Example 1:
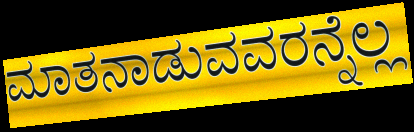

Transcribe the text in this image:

ಮಾತನಾಡುವವರನ್ನೆಲ್ಲ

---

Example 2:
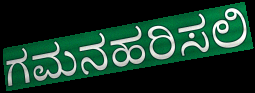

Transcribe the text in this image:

ಗಮನಹರಿಸಲಿ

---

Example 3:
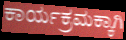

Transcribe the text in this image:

ಕಾರ್ಯಕ್ರಮಕ್ಕಾಗಿ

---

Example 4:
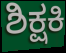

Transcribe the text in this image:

ಶಿಕ್ಷಕಿ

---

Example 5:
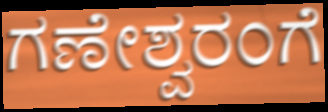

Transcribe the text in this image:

ಗಣೇಶ್ವರಂಗೆ